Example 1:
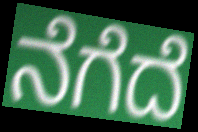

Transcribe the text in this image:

ನೆಗೆದೆ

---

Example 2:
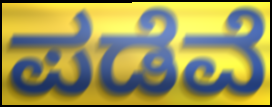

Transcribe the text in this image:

ಪಡೆವೆ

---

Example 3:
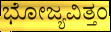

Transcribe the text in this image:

ಭೋಜ್ಯವಿತ್ತಂ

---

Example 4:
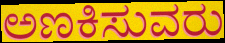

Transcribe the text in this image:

ಅಣಕಿಸುವರು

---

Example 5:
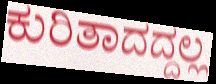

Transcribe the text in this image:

ಕುರಿತಾದದ್ದಲ್ಲ